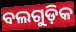
ବଲଗୁଡ଼ିକ